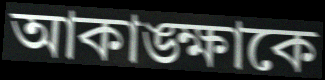
আকাঙ্ক্ষাকে